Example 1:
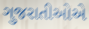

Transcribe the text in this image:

ગુજરાતીઓએ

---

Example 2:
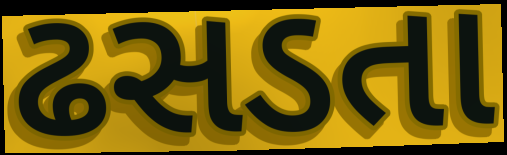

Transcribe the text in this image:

ઢસડતા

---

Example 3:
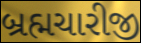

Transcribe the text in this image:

બ્રહ્મચારીજી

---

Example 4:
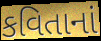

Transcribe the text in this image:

કવિતાનાં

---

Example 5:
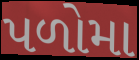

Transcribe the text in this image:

પળોમા